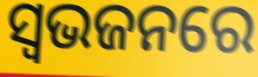
ସ୍ଵଭଜନରେ